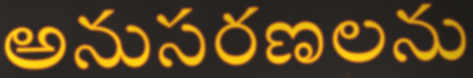
అనుసరణలను